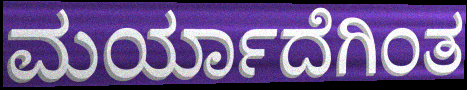
ಮರ್ಯಾದೆಗಿಂತ